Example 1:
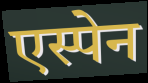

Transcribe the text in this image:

एस्पेन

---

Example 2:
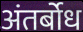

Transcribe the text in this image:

अंतर्बोध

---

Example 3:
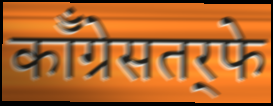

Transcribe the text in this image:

कॉँग्रेसतर्फे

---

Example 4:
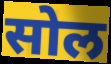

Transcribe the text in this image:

सोल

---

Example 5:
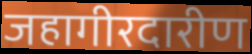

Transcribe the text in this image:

जहागीरदारीण